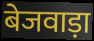
बेजवाड़ा